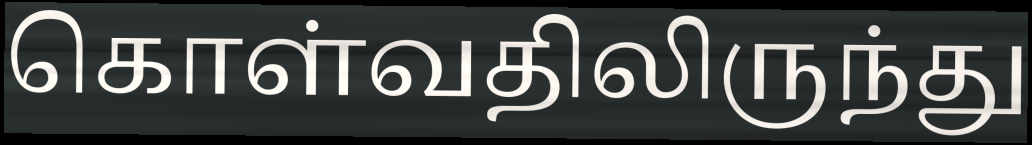
கொள்வதிலிருந்து